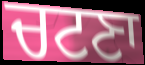
ਚਟਣਾ